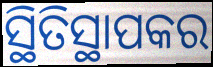
ସ୍ଥିତିସ୍ଥାପକର